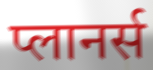
प्लानर्स